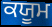
ਕਯੂਮ